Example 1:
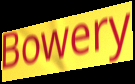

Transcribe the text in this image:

Bowery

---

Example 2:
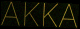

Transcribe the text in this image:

AKKA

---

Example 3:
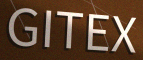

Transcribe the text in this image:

GITEX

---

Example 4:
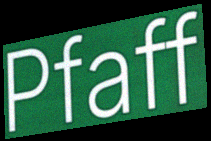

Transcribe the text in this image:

Pfaff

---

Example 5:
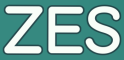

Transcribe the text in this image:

ZES